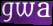
gwa